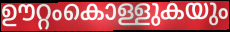
ഊറ്റംകൊള്ളുകയും